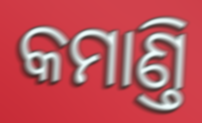
କମାଣ୍ତି